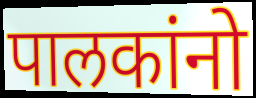
पालकांनो